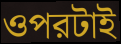
ওপরটাই